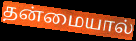
தன்மையால்